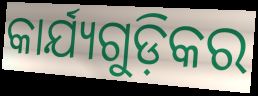
କାର୍ଯ୍ୟଗୁଡ଼ିକର